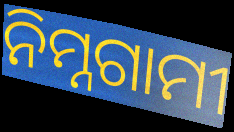
ନିମ୍ନଗାମୀ